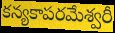
కన్యకాపరమేశ్వరీ